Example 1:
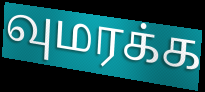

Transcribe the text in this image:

வுமரக்க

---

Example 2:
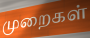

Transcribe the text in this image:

முறைகள்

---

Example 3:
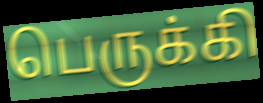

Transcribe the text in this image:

பெருக்கி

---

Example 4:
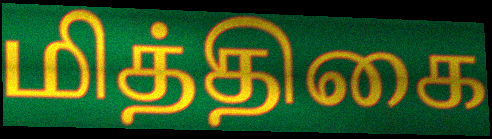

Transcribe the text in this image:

மித்திகை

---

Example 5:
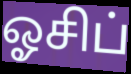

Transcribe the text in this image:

ஓசிப்